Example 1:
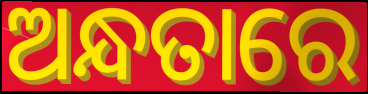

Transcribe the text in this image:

ଅନ୍ଧତାରେ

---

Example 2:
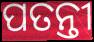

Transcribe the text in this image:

ପତନ୍ତୀ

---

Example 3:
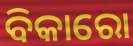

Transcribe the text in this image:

ବିକାରୋ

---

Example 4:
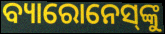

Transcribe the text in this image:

ବ୍ୟାରୋନେସ୍‌ଙ୍କୁ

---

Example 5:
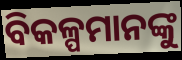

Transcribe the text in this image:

ବିକଳ୍ପମାନଙ୍କୁ